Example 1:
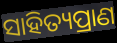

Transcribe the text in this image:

ସାହିତ୍ୟପ୍ରାଣ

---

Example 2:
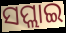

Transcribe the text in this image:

ସପ୍ଲାଇ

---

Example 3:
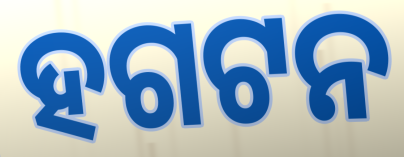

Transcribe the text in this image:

ହଗଟନ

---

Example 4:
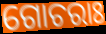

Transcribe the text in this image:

ଗୋଚରାଃ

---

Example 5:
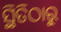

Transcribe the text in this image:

ସ୍ଥିତିଠାରୁ